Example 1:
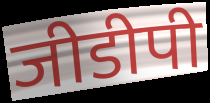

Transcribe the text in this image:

जीडीपी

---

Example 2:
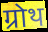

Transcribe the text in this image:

ग्रोथ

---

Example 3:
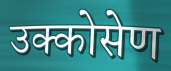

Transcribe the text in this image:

उक्कोसेण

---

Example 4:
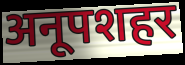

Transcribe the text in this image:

अनूपशहर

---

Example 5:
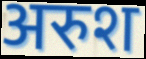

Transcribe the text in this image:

अरुश